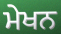
ਮੇਖਨ